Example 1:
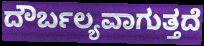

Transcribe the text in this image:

ದೌರ್ಬಲ್ಯವಾಗುತ್ತದೆ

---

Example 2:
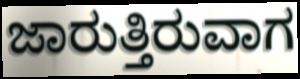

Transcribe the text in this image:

ಜಾರುತ್ತಿರುವಾಗ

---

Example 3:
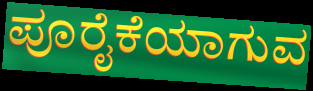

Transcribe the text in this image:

ಪೂರೈಕೆಯಾಗುವ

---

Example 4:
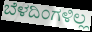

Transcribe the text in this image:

ಬೆಳದಿಂಗಳಿಲ್ಲ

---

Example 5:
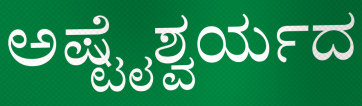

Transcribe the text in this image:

ಅಷ್ಟೈಶ್ವರ್ಯದ